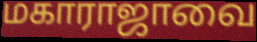
மகாராஜாவை